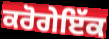
ਕਰੋਗੇਇੱਕ